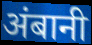
अंबानी